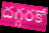
దగ్గరకో